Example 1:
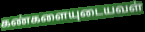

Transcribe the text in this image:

கண்களையுடையவள்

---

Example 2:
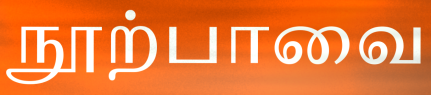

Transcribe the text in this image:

நூற்பாவை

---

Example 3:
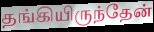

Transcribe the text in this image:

தங்கியிருந்தேன்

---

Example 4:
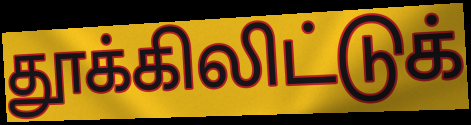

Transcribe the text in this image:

தூக்கிலிட்டுக்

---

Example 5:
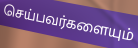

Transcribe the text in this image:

செய்பவர்களையும்